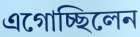
এগোচ্ছিলেন